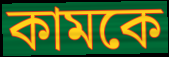
কামকে